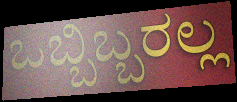
ಒಬ್ಬಿಬ್ಬರಲ್ಲ